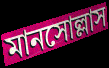
মানসোল্লাস